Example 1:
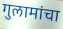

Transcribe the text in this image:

गुलामांचा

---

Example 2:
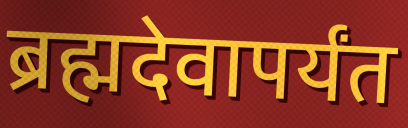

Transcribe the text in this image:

ब्रह्मदेवापर्यंत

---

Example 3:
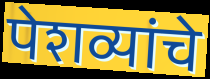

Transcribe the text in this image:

पेशव्यांचे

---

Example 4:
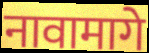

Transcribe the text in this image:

नावामागे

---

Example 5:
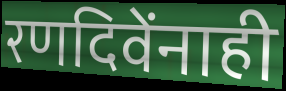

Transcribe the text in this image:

रणदिवेंनाही